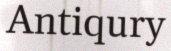
Antiqury